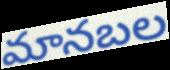
మానబల